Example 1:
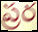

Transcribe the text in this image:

ప్రర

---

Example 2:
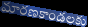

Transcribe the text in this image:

మారణకాండలకు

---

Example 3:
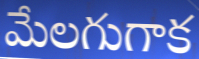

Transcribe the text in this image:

మేలగుగాక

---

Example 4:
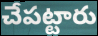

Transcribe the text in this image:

చేపట్టారు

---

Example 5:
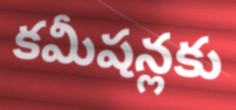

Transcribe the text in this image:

కమీషన్లకు